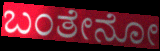
ಬಂತೇನೋ